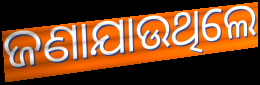
ଜଣାଯାଉଥିଲେ